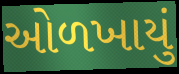
ઓળખાયું